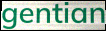
gentian